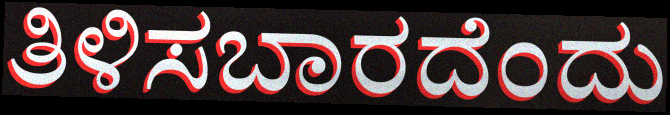
ತಿಳಿಸಬಾರದೆಂದು